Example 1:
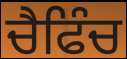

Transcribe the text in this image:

ਚੈਫਿੰਚ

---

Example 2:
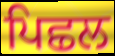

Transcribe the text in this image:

ਪਿਛਲ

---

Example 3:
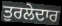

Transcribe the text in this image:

ਤੁਰਲੇਦਾਰ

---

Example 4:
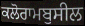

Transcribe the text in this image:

ਕਲੋਰਾਮਬੁਸੀਲ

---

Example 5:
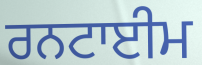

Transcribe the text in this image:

ਰਨਟਾਈਮ